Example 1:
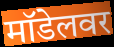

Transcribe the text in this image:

मॉडेलवर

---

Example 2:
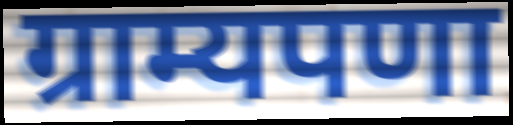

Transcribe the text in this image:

ग्राम्यपणा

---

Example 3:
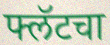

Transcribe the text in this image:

फ्लॅटचा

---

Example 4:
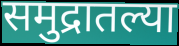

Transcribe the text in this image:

समुद्रातल्या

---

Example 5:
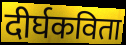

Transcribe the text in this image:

दीर्घकविता